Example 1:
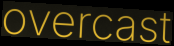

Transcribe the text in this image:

overcast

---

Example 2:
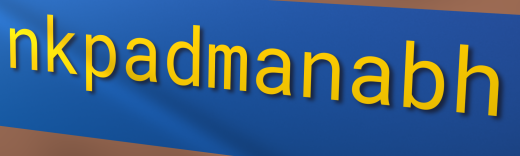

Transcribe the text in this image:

nkpadmanabh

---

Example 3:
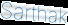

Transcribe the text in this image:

Sarthak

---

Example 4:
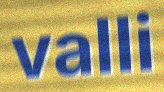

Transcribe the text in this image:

valli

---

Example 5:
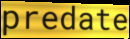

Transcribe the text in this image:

predate